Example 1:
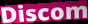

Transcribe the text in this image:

Discom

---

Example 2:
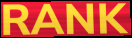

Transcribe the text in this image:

RANK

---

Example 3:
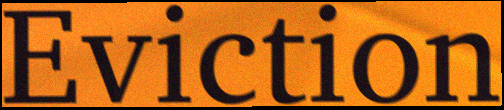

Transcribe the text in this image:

Eviction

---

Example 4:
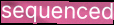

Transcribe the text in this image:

sequenced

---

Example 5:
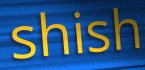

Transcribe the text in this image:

shish